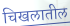
चिखलातील